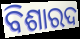
ବିଶାରଦ